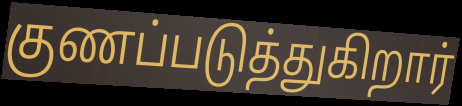
குணப்படுத்துகிறார்